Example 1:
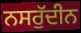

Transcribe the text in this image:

ਨਸਰੁੱਦੀਨ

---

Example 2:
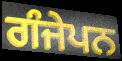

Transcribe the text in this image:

ਗੰਜੇਪਨ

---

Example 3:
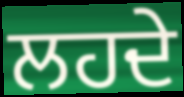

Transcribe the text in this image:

ਲਹਦੇ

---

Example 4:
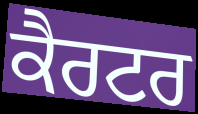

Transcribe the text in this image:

ਕੈਰਟਰ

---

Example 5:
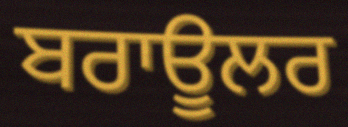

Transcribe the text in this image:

ਬਰਾਊਲਰ